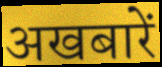
अखबारें